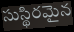
సుస్థిరమైన